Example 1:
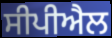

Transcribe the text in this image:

ਸੀਪੀਐਲ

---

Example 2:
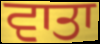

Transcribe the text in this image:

ਵਾਤਾ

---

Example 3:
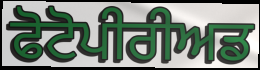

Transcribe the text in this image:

ਫੋਟੋਪੀਰੀਅਡ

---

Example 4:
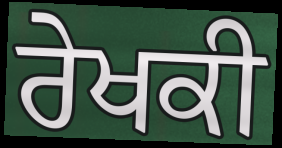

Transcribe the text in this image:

ਰੇਖਕੀ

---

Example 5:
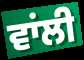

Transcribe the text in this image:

ਵਾਂਲੀ